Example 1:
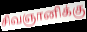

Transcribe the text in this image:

சிவஞானிக்கு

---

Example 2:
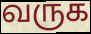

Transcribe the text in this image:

வருக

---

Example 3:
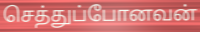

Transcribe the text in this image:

செத்துப்போனவன்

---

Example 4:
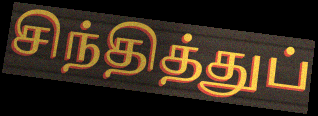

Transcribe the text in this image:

சிந்தித்துப்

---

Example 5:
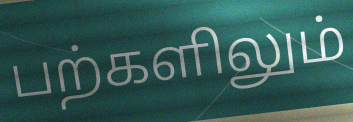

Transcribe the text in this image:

பற்களிலும்